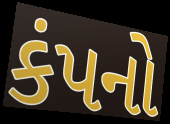
કંપનો